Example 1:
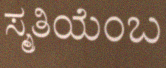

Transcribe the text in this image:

ಸ್ಮೃತಿಯೆಂಬ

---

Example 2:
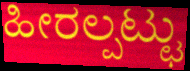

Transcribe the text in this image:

ಹೀರಲ್ಪಟ್ಟು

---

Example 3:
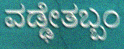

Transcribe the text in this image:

ವಡ್ಢೇತಬ್ಬಂ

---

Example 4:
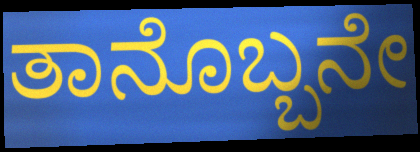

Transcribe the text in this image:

ತಾನೊಬ್ಬನೇ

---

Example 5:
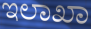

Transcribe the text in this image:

ಇಲಾಖಾ